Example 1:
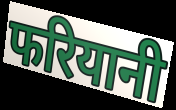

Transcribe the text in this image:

फरियानी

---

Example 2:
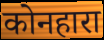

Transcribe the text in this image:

कोनहारा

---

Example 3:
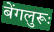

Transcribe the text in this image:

बेंगलुरूः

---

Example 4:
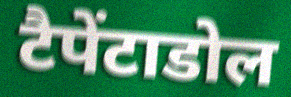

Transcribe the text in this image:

टैपेंटाडोल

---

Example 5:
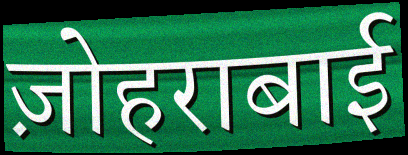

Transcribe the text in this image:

ज़ोहराबाई